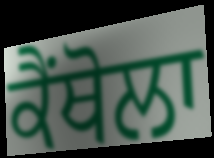
ਕੈਂਥੋਲਾ